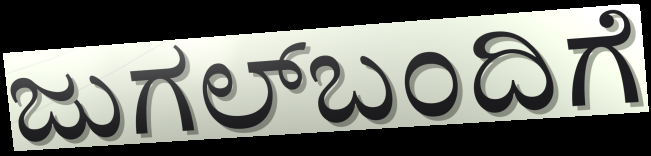
ಜುಗಲ್‌ಬಂದಿಗೆ